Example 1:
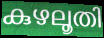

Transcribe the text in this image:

കുഴലൂതി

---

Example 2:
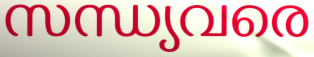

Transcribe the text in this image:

സന്ധ്യവരെ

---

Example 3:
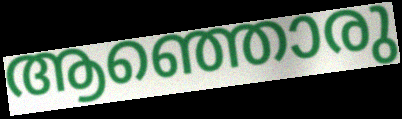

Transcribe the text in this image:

ആഞ്ഞൊരു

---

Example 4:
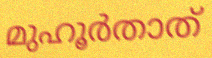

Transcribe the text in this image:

മുഹൂർതാത്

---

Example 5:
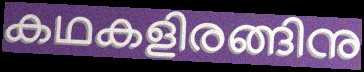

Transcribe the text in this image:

കഥകളിരങ്ങിനു